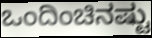
ಒಂದಿಂಚಿನಷ್ಟು